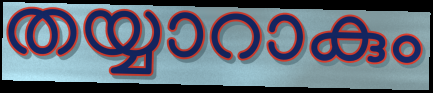
തയ്യാറാകും